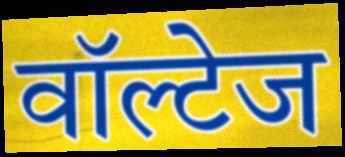
वॉल्टेज